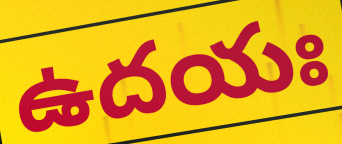
ఉదయః